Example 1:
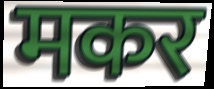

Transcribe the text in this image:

मकर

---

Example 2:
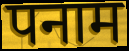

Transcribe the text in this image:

पनाम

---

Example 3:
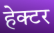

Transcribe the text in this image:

हेक्टर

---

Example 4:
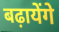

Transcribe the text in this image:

बढ़ायेंगे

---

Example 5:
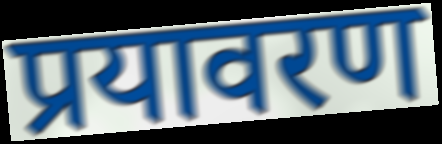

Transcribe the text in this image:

प्रयावरण